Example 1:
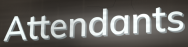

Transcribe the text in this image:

Attendants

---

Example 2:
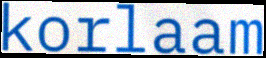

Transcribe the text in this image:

korlaam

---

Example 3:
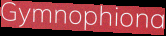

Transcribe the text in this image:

Gymnophiona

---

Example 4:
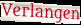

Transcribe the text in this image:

Verlangen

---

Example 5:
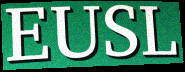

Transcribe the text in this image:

EUSL